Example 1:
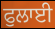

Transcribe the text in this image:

ਫੁਲਾਈ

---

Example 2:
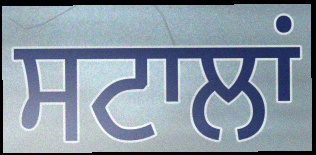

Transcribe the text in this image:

ਸਟਾਲਾਂ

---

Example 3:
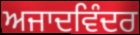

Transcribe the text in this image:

ਅਜਾਦਵਿੰਦਰ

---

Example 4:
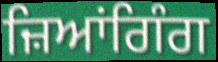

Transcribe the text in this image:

ਜ਼ਿਆਂਗਿੰਗ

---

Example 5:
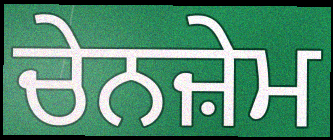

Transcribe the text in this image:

ਚੇਨਜ਼ੇਮ